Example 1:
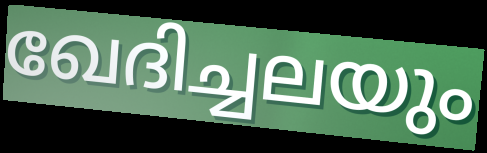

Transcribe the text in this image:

ഖേദിച്ചലയും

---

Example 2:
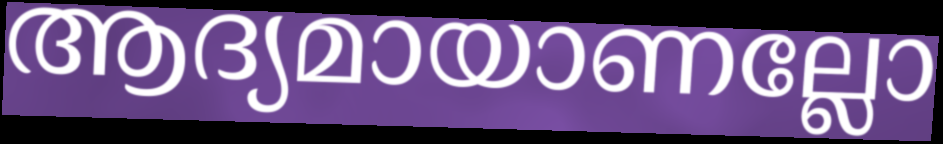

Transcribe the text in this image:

ആദ്യമായാണല്ലോ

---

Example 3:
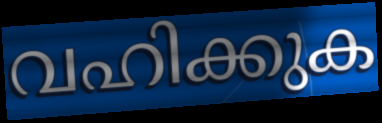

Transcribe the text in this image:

വഹിക്കുക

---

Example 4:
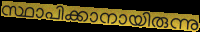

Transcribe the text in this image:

സ്ഥാപിക്കാനായിരുന്നു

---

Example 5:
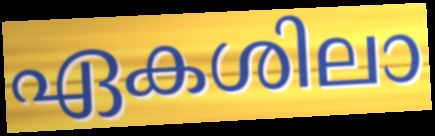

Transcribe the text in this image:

ഏകശിലാ